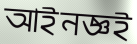
আইনজ্ঞই